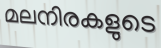
മലനിരകളുടെ